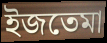
ইজতেমা